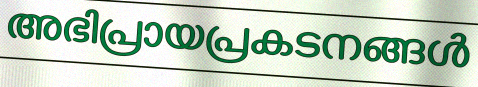
അഭിപ്രായപ്രകടനങ്ങൾ